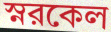
স্নরকেল